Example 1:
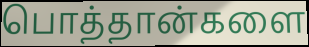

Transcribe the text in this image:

பொத்தான்களை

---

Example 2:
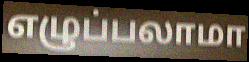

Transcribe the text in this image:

எழுப்பலாமா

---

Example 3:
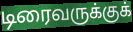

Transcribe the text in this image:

டிரைவருக்குக்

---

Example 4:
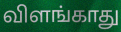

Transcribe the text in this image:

விளங்காது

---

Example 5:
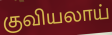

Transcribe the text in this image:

குவியலாய்